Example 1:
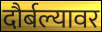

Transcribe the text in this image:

दौर्बल्यावर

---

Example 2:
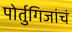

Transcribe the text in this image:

पोर्तुगिजांचं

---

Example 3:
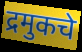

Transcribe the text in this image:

द्रमुकचे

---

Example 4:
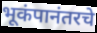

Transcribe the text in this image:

भूकंपानंतरचे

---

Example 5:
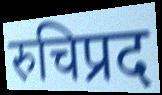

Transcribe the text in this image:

रुचिप्रद